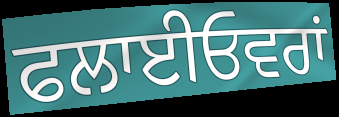
ਫਲਾਈਓਵਰਾਂ